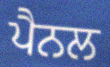
ਪੈਨਲ